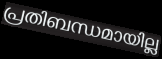
പ്രതിബന്ധമായില്ല